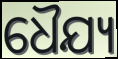
ଧୈଯ୍ଯ